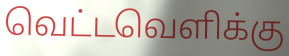
வெட்டவெளிக்கு